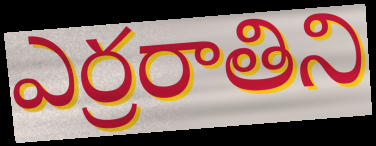
ఎర్రరాతిని